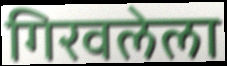
गिरवलेला